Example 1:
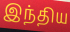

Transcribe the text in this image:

இந்திய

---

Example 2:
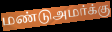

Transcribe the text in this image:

மண்டுஅமர்க்கு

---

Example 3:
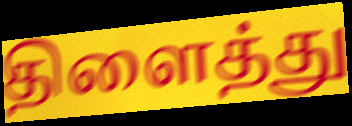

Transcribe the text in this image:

திளைத்து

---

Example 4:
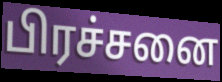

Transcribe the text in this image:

பிரச்சனை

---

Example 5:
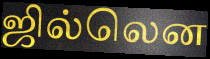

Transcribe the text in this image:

ஜில்லென